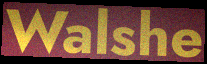
Walshe